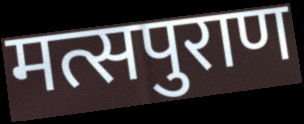
मत्सपुराण